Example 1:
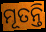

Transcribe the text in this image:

ମୂତନ୍ତି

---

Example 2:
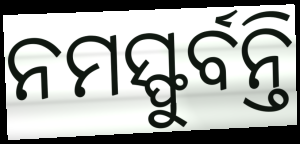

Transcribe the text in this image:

ନମସ୍ଫୁର୍ବନ୍ତି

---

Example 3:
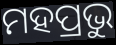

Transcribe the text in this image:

ମହପ୍ରଭୁ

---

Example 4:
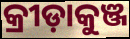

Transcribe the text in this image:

କ୍ରୀଡ଼ାକୁଞ୍ଜ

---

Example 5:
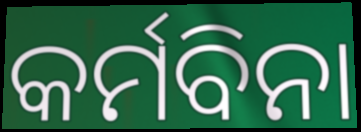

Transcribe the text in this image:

କର୍ମବିନା